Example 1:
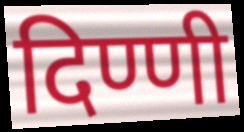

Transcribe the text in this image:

दिण्णी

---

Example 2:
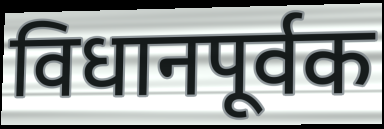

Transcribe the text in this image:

विधानपूर्वक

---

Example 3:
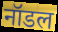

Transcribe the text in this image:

नॉडल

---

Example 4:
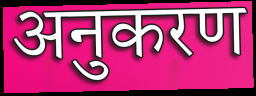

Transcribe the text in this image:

अनुकरण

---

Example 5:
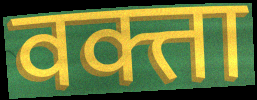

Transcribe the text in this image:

वक्ता